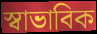
স্বাভাবিক